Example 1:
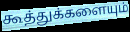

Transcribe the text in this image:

கூத்துக்களையும்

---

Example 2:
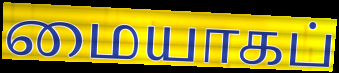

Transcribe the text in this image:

மையாகப்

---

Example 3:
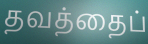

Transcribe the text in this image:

தவத்தைப்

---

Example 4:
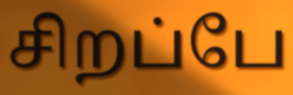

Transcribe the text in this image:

சிறப்பே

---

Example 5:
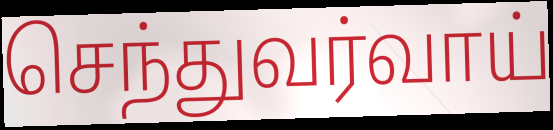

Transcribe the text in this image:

செந்துவர்வாய்